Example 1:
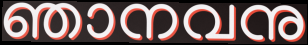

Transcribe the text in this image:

ഞാനവനു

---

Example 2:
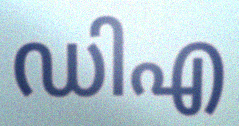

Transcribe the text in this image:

ഡിഎ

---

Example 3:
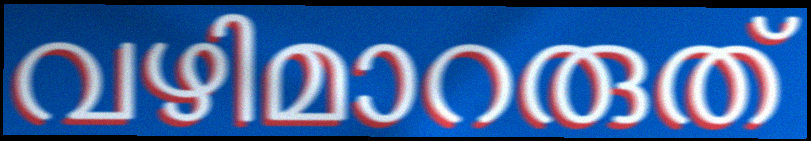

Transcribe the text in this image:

വഴിമാറരുത്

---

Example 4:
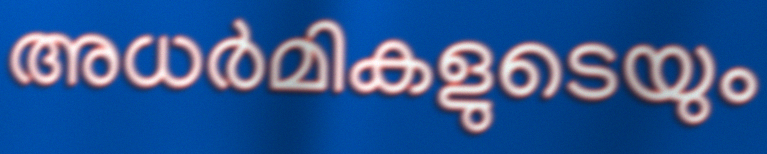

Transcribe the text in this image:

അധർമികളുടെയും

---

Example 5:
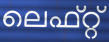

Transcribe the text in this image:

ലെഫ്റ്റ്